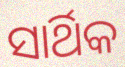
ସାର୍ଥିକ